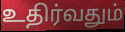
உதிர்வதும்